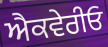
ਐਕਵੇਰੀਓ